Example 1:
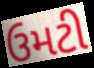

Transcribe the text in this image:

ઉમટી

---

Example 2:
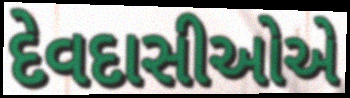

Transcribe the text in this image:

દેવદાસીઓએ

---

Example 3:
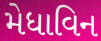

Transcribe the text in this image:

મેધાવિન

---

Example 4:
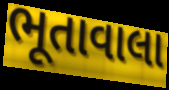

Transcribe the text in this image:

ભૂતાવાલા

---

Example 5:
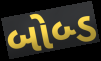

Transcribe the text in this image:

બોબ્ડ